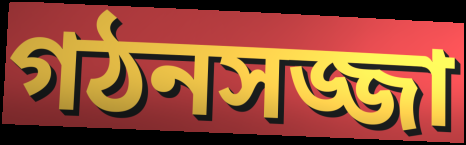
গঠনসজ্জা